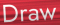
Draw